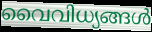
വൈവിധ്യങ്ങൾ